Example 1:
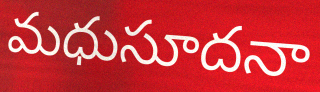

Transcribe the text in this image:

మధుసూదనా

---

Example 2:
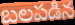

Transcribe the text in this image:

బలపడిన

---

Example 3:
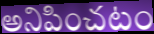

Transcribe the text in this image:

అనిపించటం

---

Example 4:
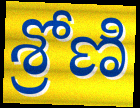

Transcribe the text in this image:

శ్రోణి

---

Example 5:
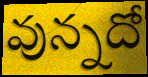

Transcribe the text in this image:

వున్నదో